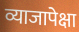
व्याजापेक्षा